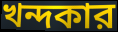
খন্দকার